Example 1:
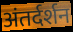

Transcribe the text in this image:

अंतर्दर्शन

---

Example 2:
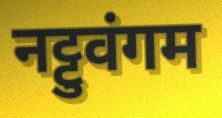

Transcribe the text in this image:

नट्टुवंगम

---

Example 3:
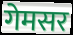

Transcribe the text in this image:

गेमसर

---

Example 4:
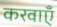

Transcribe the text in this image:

करवाएँ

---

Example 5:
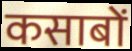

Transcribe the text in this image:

कसाबों